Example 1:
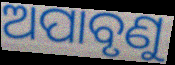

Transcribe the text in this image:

ଅପାବୃଣୁ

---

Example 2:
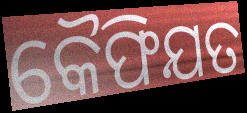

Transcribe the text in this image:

କୈଫିଯତ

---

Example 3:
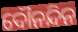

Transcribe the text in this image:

ଦୌନନ୍ଦିନ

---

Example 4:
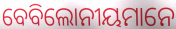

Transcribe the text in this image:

ବେବିଲୋନୀୟମାନେ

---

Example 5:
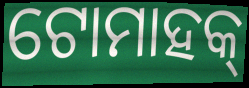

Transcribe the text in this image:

ଟୋମାହକ୍